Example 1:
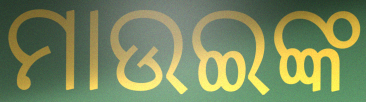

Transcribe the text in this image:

ମାଉଇଙ୍କ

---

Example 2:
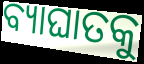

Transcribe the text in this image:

ବ୍ୟାଘାତକୁ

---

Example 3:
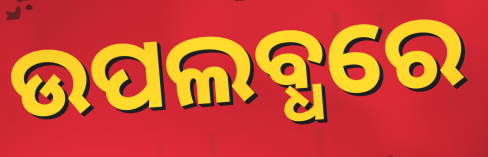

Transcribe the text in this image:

ଉପଲବ୍ଧରେ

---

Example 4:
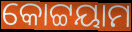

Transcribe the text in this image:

କୋଟ୍ଟୟାମ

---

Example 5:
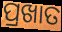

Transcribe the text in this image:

ପ୍ରଖାତ